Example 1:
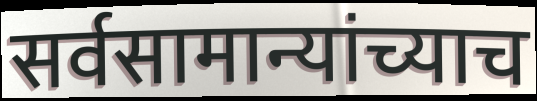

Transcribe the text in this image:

सर्वसामान्यांच्याच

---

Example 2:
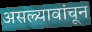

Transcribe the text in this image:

असल्यावांचून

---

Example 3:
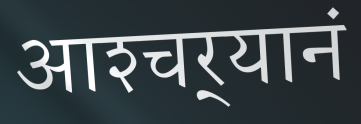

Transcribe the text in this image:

आश्चर्यानं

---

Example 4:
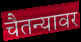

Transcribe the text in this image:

चैतन्यावर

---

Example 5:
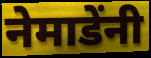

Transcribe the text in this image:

नेमाडेंनी